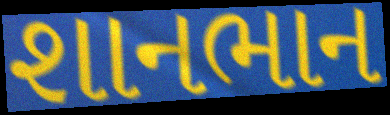
શાનભાન